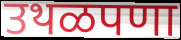
उथळपणा